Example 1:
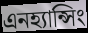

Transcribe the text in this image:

এনহ্যান্সিং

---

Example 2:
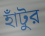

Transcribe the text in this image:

হাঁটুর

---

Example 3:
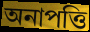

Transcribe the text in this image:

অনাপত্তি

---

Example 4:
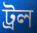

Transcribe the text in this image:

ট্রল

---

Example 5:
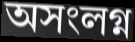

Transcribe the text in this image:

অসংলগ্ন